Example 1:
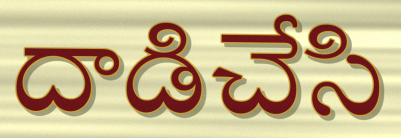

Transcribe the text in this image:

దాడిచేసి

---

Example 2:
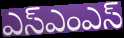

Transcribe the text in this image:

ఎస్ఎంఎస్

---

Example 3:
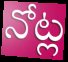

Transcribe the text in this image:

నోట్ల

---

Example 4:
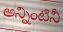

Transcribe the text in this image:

అన్నింటినీ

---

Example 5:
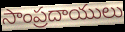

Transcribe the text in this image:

సాంప్రదాయులు